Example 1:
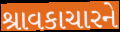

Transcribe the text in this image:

શ્રાવકાચારને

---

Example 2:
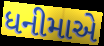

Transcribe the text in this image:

ધનીમાએ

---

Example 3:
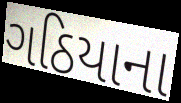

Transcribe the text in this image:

ગઠિયાના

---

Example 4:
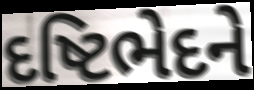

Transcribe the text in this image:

દષ્ટિભેદને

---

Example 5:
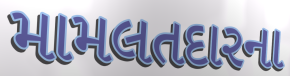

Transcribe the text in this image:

મામલતદારના